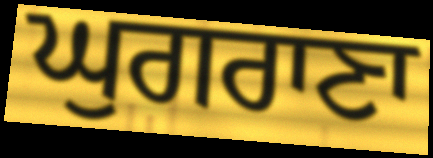
ਘੁਗਰਾਣਾ